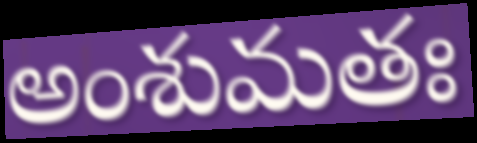
అంశుమతః